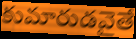
కుమారుడవైతే